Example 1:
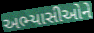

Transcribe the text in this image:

અભ્યાસીઓને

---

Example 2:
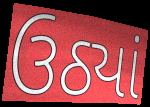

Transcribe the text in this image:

ઉઠ્યાં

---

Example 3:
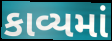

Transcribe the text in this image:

કાવ્યમાં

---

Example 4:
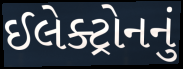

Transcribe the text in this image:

ઈલેક્ટ્રોનનું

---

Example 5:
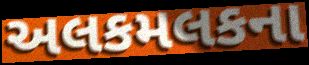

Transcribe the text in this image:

અલકમલકના